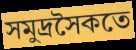
সমুদ্রসৈকতে